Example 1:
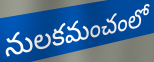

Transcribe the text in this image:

నులకమంచంలో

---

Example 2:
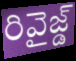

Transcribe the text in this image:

రివైజ్డ్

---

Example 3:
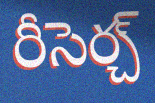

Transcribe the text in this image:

రీసెర్చ్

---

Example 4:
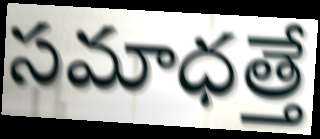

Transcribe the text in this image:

సమాధత్తే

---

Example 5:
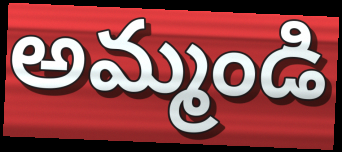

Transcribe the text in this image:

అమ్మండి